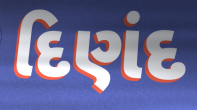
દિણંદ